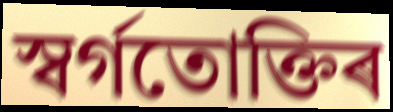
স্বৰ্গতোক্তিৰ